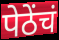
पेठेंचं